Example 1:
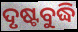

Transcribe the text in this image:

ଦୃଷ୍ଟବୁଦ୍ଧି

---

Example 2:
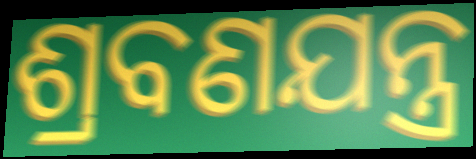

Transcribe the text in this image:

ଶ୍ରବଣଯନ୍ତ୍ର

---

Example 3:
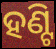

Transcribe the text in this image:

ହଣ୍ଟି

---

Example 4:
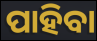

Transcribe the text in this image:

ପାହିବା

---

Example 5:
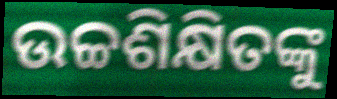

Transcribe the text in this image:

ଉଚ୍ଚଶିକ୍ଷିତଙ୍କୁ